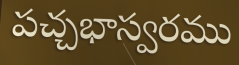
పచ్చభాస్వరము